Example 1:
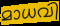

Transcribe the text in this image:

മാധവി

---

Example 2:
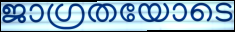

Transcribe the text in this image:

ജാഗ്രതയോടെ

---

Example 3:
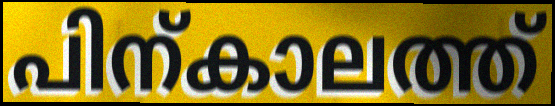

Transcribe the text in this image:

പിന്കാലത്ത്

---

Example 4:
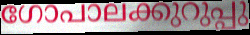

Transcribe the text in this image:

ഗോപാലക്കുറുപ്പു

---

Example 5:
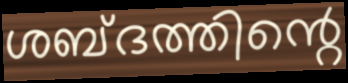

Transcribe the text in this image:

ശബ്ദത്തിന്റെ